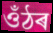
ওঁঠৰ